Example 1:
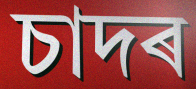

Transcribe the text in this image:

চাদৰ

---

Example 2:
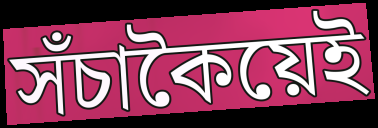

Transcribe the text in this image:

সঁচাকৈয়েই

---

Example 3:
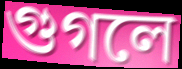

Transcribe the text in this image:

গুগলে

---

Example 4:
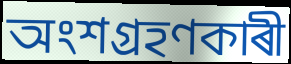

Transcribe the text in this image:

অংশগ্ৰহণকাৰী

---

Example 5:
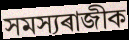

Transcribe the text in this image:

সমস্যৰাজীক